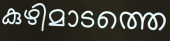
കുഴിമാടത്തെ